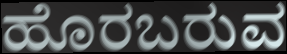
ಹೊರಬರುವ